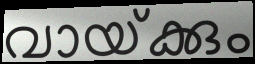
വായ്‌ക്കും